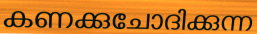
കണക്കുചോദിക്കുന്ന